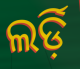
ଲର୍ଡ଼ି